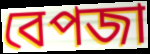
বেপজা